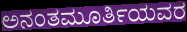
ಅನಂತಮೂರ್ತಿಯವರ